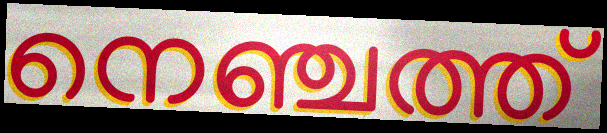
നെഞ്ചത്ത്